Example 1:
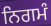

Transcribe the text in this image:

ਨਿਗਮੰ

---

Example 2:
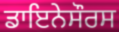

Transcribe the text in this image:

ਡਾਇਨੇਸੌਰਸ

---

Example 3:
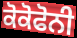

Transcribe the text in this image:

ਕੋਕੋਫੋਨੀ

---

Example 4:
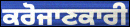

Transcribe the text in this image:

ਕਰੋਜਾਣਕਾਰੀ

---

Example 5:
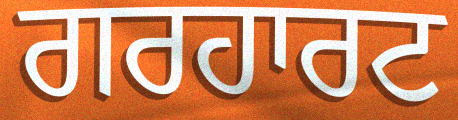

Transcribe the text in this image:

ਗਰਹਾਰਟ